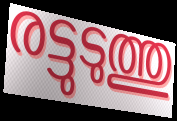
രട്ടുടുത്തു